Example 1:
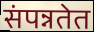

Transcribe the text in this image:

संपन्नतेत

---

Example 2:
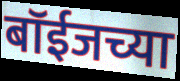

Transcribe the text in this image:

बॉईजच्या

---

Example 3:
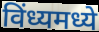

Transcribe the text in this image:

विंध्यमध्ये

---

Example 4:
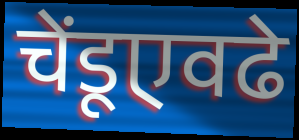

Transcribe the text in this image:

चेंडूएवढे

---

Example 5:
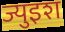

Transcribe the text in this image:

ज्युइश